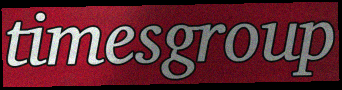
timesgroup